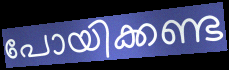
പോയിക്കണ്ട